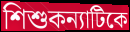
শিশুকন্যাটিকে